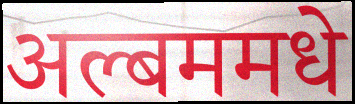
अल्बममधे